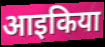
आइकिया